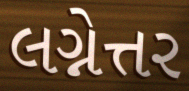
લગ્નેત્તર